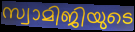
സ്വാമിജിയുടെ